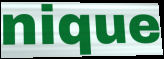
nique